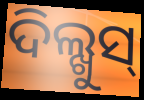
ଦିଲ୍ଖୁସ୍